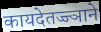
कायदेतज्ज्ञाने